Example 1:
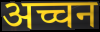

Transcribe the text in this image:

अच्चन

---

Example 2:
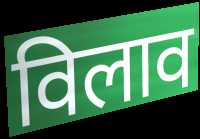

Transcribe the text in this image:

विलाव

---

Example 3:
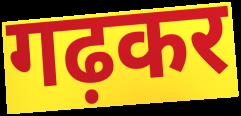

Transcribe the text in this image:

गढ़कर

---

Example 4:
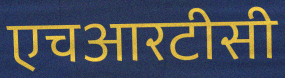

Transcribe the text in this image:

एचआरटीसी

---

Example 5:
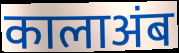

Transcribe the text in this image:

कालाअंब